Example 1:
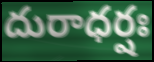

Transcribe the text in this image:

దురాధర్షః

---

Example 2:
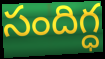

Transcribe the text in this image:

సందిగ్ధ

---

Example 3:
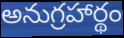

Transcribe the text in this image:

అనుగ్రహార్థం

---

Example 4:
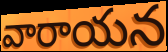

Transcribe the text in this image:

వారాయన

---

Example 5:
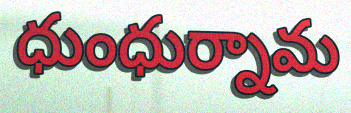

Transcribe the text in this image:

ధుంధుర్నామ